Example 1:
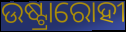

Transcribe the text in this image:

ଉଷ୍ଟ୍ରାରୋହୀ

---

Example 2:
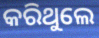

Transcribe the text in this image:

କରିଥୁଲେ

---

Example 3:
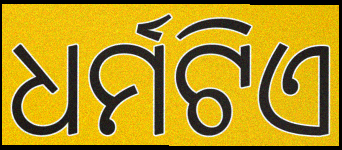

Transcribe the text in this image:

ଧର୍ମଟିଏ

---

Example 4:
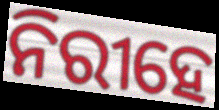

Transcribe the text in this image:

ନିରୀହେ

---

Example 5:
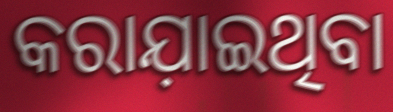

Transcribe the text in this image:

କରାଯ଼ାଇଥିବା